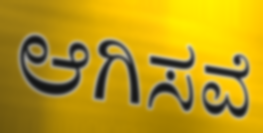
ಆಗಿಸವೆ